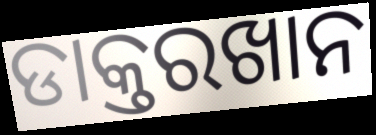
ଡାକ୍ତରଖାନ